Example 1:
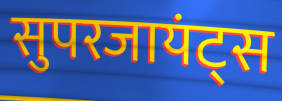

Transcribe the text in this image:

सुपरजायंट्स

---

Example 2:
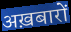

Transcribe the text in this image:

अख़बारों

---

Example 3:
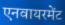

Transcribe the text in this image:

एनवायरमेंट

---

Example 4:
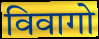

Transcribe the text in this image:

विवागो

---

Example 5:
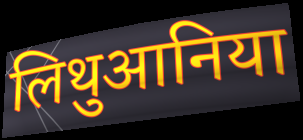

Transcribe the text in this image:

लिथुआनिया